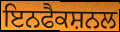
ਇਨਫੈਕਸ਼ਨਲ